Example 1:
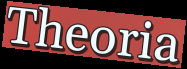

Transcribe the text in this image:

Theoria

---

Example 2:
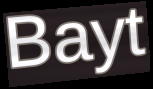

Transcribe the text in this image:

Bayt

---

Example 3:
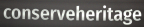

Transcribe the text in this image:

conserveheritage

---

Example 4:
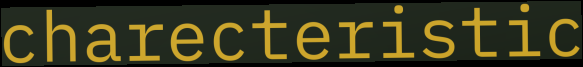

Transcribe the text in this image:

charecteristic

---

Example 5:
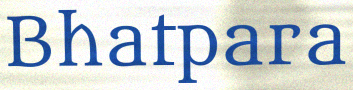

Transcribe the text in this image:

Bhatpara